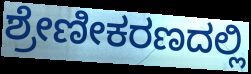
ಶ್ರೇಣೀಕರಣದಲ್ಲಿ